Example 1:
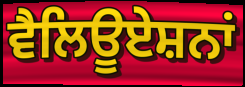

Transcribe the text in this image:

ਵੈਲਿਊਏਸ਼ਨਾਂ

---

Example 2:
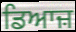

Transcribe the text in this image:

ਡਿਆਜ਼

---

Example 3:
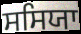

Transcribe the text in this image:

ਸਸਿਯਾ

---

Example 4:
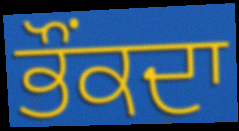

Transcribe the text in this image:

ਭੌਂਕਦਾ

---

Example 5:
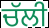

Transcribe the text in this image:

ਚੱਲੀ